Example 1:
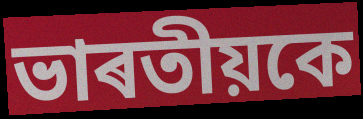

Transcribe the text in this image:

ভাৰতীয়কে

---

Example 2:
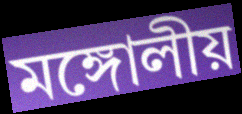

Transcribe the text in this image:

মঙ্গোলীয়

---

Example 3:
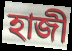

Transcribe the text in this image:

হাজী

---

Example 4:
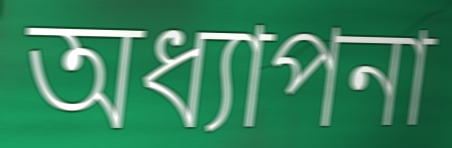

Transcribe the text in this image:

অধ্যাপনা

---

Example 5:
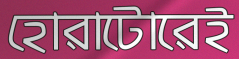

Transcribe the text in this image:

হোৱাটোৱেই